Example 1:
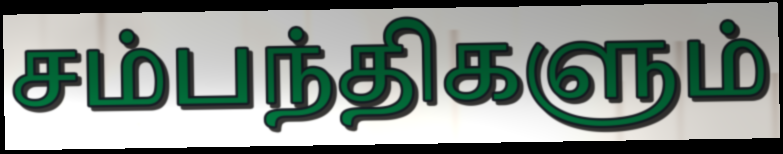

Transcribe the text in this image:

சம்பந்திகளும்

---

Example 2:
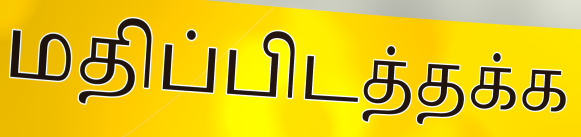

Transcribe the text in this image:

மதிப்பிடத்தக்க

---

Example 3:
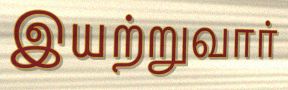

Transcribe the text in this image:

இயற்றுவார்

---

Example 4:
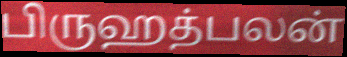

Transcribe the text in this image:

பிருஹத்பலன்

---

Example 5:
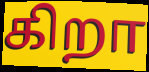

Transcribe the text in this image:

கிறா